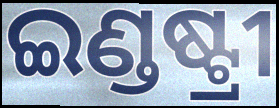
ଇଣ୍ଡଷ୍ଟ୍ରୀ